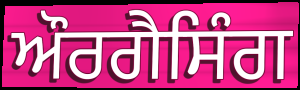
ਔਰਗੈਸਿੰਗ